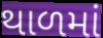
થાળમાં